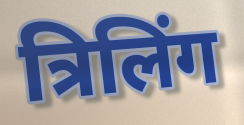
त्रिलिंग